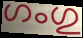
ഗംഗു